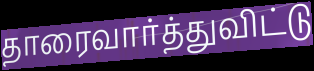
தாரைவார்த்துவிட்டு